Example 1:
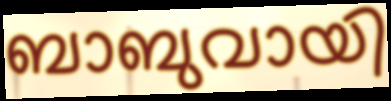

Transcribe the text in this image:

ബാബുവായി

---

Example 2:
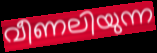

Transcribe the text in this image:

വീണലിയുന്ന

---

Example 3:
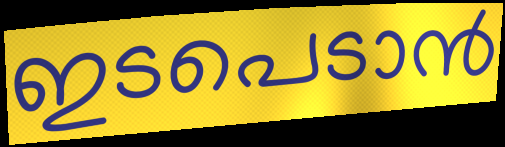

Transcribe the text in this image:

ഇടപെടാൻ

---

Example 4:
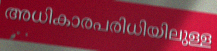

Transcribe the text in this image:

അധികാരപരിധിയിലുള്ള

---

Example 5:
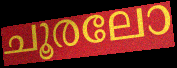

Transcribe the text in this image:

ചൂരലോ